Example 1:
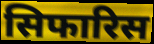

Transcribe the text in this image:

सिफारिस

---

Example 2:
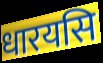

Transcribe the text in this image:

धारयसि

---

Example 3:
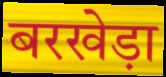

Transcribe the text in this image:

बरखेड़ा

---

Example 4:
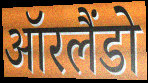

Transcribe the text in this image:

ऑरलैंडो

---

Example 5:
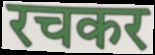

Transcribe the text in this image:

रचकर